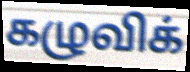
கழுவிக்